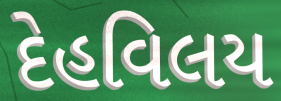
દેહવિલય